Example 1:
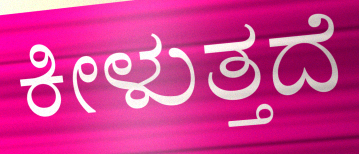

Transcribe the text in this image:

ಕೀಳುತ್ತದೆ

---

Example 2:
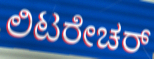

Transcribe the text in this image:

ಲಿಟರೇಚರ್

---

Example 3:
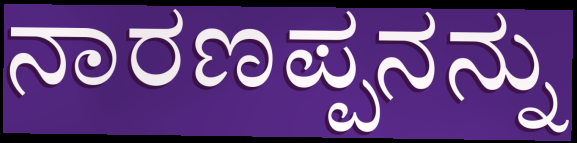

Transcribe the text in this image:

ನಾರಣಪ್ಪನನ್ನು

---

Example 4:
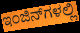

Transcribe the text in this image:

ಇಂಜಿನ್‌ಗಳಲ್ಲಿ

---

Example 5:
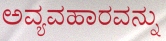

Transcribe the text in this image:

ಅವ್ಯವಹಾರವನ್ನು